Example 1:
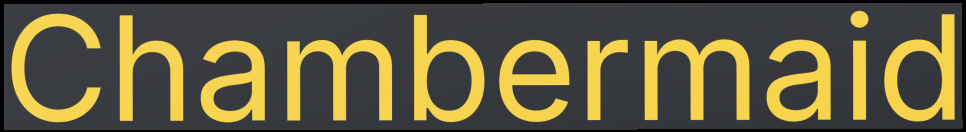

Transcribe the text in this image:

Chambermaid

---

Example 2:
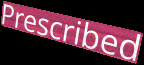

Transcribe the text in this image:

Prescribed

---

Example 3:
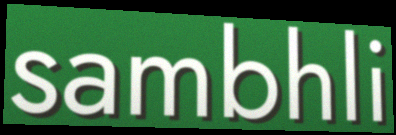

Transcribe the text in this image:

sambhli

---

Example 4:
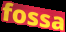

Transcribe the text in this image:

fossa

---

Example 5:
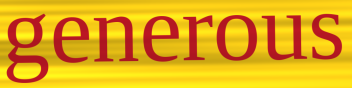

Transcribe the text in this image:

generous